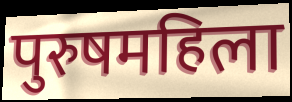
पुरुषमहिला